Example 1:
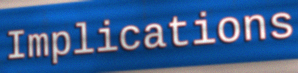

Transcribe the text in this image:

Implications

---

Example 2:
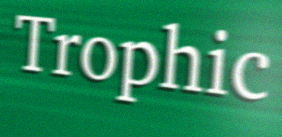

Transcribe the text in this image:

Trophic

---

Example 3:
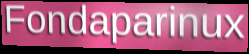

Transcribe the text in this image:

Fondaparinux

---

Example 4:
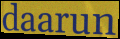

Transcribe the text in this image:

daarun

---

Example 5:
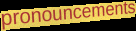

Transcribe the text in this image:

pronouncements